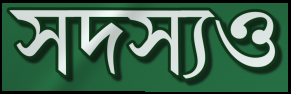
সদস্যও